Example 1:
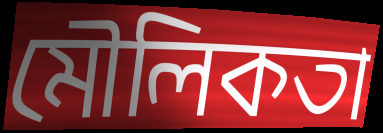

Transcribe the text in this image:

মৌলিকতা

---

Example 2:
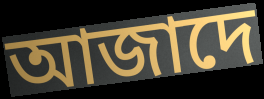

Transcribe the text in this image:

আজাদে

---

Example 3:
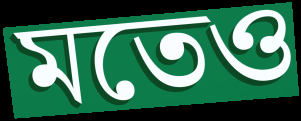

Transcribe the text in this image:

মতেও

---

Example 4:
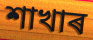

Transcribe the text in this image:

শাখাৰ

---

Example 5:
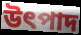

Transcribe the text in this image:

উৎপাদ